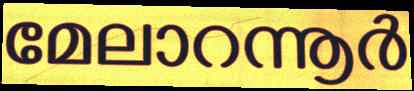
മേലാറന്നൂർ